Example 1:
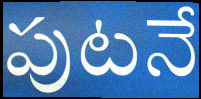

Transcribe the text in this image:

పుటనే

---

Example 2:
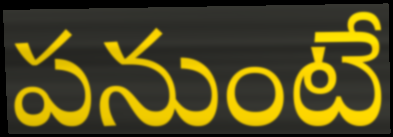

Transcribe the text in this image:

పనుంటే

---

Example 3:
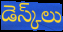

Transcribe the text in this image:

డెస్క్‌లు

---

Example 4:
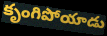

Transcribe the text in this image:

కృంగిపోయాడు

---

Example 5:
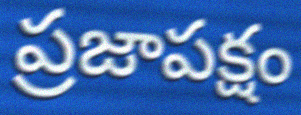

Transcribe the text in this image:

ప్రజాపక్షం